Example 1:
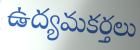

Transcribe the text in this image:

ఉద్యమకర్తలు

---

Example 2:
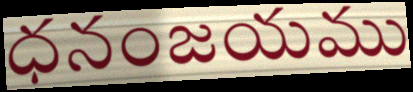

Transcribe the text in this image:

ధనంజయము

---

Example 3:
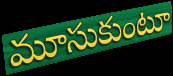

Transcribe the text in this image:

మూసుకుంటూ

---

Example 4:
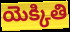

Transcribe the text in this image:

యెక్కితి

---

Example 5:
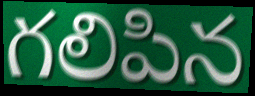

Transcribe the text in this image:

గలిపిన